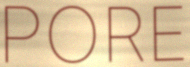
PORE